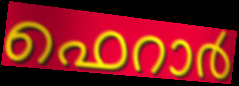
ഫെറാർ